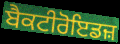
ਬੈਕਟੀਰੋਇਡਜ਼